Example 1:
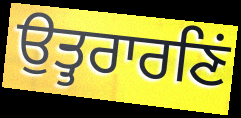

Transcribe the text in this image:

ਉਤ੍ਤਰਾਰਣਿਂ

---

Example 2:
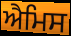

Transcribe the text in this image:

ਐਮਿਸ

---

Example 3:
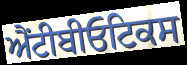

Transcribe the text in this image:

ਐਂਟੀਬੀਓਟਿਕਸ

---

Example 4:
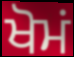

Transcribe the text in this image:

ਖੋਮਂ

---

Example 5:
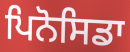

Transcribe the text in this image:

ਪਿਨੋਸਿਡਾ